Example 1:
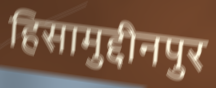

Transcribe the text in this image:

हिसामुद्दीनपुर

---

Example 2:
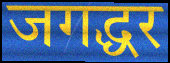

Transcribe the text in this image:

जगद्धर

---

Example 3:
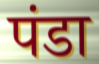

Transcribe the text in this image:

पंडा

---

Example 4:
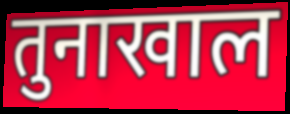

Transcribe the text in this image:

तुनाखाल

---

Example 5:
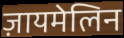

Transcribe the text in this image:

ज़ायमेलिन